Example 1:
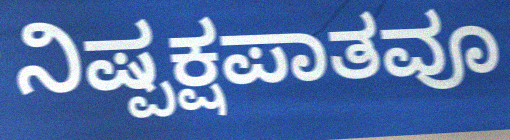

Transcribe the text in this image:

ನಿಷ್ಪಕ್ಷಪಾತವೂ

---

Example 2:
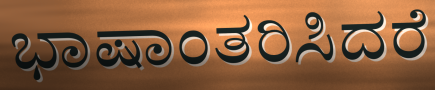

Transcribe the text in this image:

ಭಾಷಾಂತರಿಸಿದರೆ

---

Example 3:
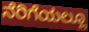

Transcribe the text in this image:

ನೆರಿಗೆಯಲ್ಲೂ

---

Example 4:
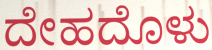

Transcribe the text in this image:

ದೇಹದೊಳು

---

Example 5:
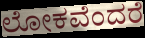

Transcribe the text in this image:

ಲೋಕವೆಂದರೆ